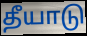
தீயாடு